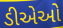
ડીએઓ